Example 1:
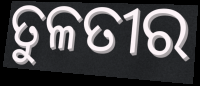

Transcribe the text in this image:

ତୁଳତୀର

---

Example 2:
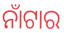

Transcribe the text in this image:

ନାଁଟାର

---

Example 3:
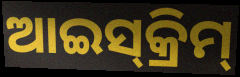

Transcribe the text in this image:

ଆଇସ୍‍କ୍ରିମ୍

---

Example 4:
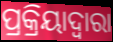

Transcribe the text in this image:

ପ୍ରକ୍ରିୟାଦ୍ଵାରା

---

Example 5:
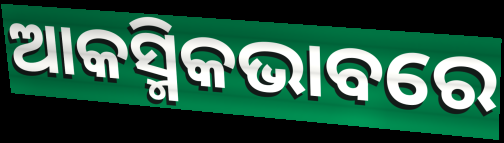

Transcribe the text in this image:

ଆକସ୍ମିକଭାବରେ